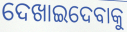
ଦେଖାଇଦେବାକୁ